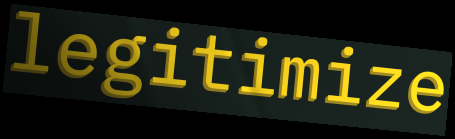
legitimize